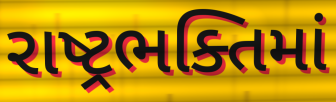
રાષ્ટ્રભક્તિમાં